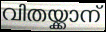
വിതയ്ക്കാന്